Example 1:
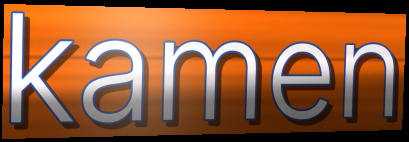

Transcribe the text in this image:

kamen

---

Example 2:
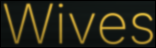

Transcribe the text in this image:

Wives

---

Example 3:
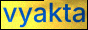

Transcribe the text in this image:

vyakta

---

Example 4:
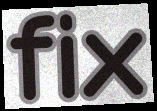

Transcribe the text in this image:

fix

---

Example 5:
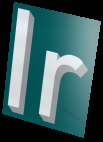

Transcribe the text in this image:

Ir